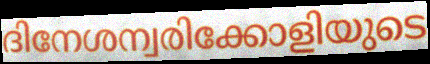
ദിനേശന്വരിക്കോളിയുടെ